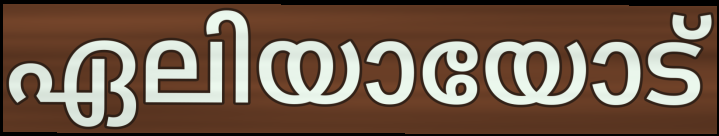
ഏലിയായോട്